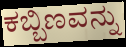
ಕಬ್ಬಿಣವನ್ನು